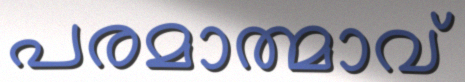
പരമാത്മാവ്